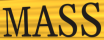
MASS